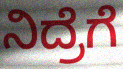
ನಿದ್ರೆಗೆ